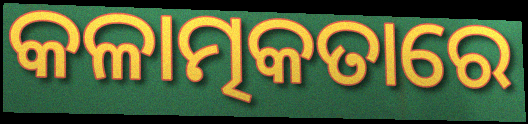
କଳାତ୍ମକତାରେ